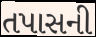
તપાસની